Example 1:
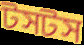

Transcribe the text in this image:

টসটস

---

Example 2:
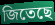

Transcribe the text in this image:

জিতেছে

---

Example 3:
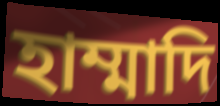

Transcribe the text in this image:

হাম্মাদি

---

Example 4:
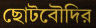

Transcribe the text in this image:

ছোটবৌদির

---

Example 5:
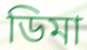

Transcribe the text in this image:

ডিমা